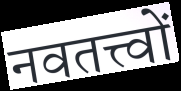
नवतत्त्वों